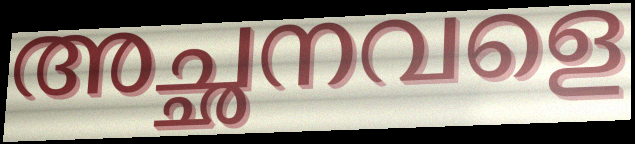
അച്ഛനവളെ